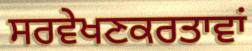
ਸਰਵੇਖਣਕਰਤਾਵਾਂ